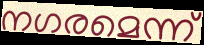
നഗരമെന്ന്